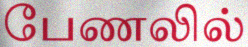
பேணலில்